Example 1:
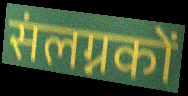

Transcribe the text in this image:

संलग्नकों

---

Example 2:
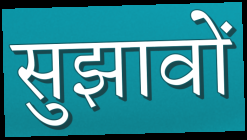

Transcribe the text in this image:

सुझावों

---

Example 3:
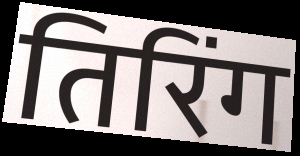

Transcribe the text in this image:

तिरिंग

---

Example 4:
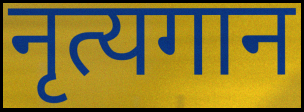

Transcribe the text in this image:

नृत्यगान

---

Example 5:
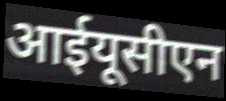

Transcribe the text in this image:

आईयूसीएन